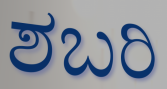
ಶಬರಿ